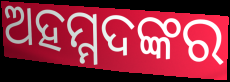
ଅହମ୍ମଦଙ୍କର